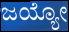
ಜಯ್ಯೋ